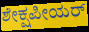
ಶೇಕ್ಷಪೀಯರ್